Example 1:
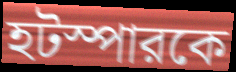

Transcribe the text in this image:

হটস্পারকে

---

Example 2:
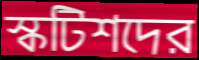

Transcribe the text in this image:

স্কটিশদের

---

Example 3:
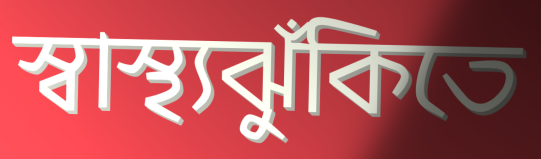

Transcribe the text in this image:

স্বাস্থ্যঝুঁকিতে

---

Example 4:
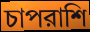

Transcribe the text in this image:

চাপরাশি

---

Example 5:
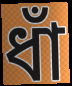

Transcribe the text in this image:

ধাঁ